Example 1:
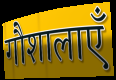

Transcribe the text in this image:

गौशालाएँ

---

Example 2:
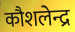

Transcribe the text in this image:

कौशलेन्द्र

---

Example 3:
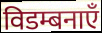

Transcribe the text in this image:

विडम्बनाएँ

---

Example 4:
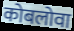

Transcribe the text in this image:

कोबलोवा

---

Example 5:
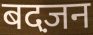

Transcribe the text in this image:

बदज़न